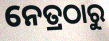
ନେତ୍ରଠାରୁ